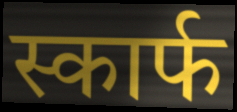
स्कार्फ